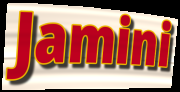
Jamini